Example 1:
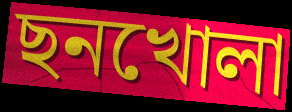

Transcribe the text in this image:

ছনখোলা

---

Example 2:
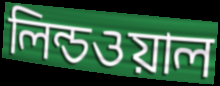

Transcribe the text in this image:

লিন্ডওয়াল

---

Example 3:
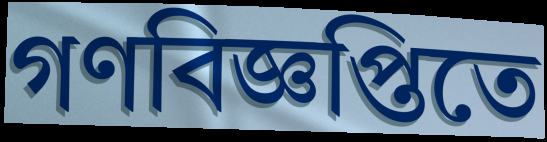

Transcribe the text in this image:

গণবিজ্ঞপ্তিতে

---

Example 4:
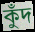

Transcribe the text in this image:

কুঁদ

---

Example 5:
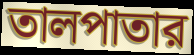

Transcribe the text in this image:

তালপাতার